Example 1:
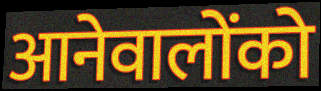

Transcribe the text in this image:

आनेवालोंको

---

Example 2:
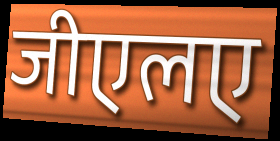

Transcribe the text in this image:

जीएलए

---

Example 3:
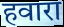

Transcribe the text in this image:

हवारा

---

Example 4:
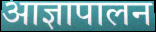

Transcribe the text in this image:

आज्ञापालन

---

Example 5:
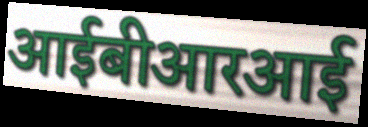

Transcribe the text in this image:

आईबीआरआई